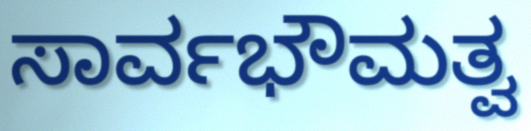
ಸಾರ್ವಭೌಮತ್ವ